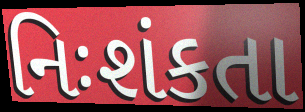
નિઃશંકતા